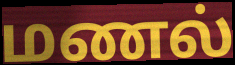
மணல்